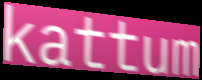
kattum